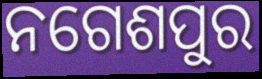
ନଗେଶପୁର